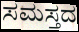
ಸಮಸ್ತದ